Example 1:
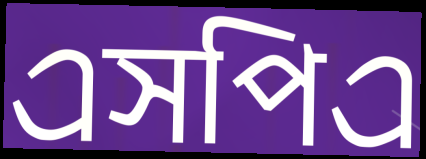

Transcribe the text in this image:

এসপিএ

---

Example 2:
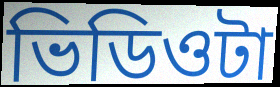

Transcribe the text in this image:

ভিডিওটা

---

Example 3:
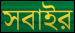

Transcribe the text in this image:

সবাইর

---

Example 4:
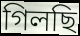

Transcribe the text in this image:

গিলছি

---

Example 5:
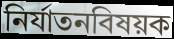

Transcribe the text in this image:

নির্যাতনবিষয়ক